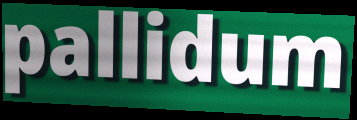
pallidum